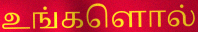
உங்களொல்